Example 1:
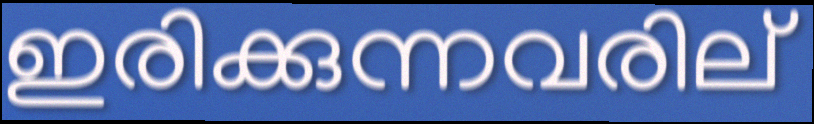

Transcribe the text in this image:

ഇരിക്കുന്നവരില്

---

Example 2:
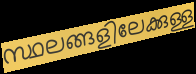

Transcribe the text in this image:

സ്ഥലങ്ങളിലേക്കുള്ള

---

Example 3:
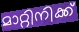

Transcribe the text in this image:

മാറ്റിനിക്ക്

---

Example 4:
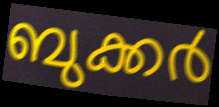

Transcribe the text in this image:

ബുക്കർ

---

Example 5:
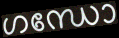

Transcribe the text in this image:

ഗന്ധോ